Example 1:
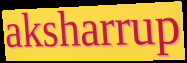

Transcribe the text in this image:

aksharrup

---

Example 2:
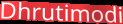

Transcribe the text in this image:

Dhrutimodi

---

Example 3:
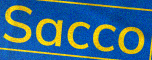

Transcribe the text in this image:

Sacco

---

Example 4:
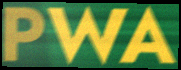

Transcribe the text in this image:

PWA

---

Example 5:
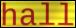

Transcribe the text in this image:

hall